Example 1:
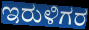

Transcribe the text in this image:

ಇರುಳಿಗರ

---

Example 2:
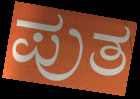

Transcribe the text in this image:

ಪುತ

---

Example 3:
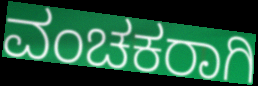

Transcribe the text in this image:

ವಂಚಕರಾಗಿ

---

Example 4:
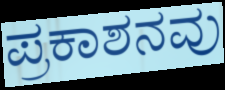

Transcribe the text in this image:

ಪ್ರಕಾಶನವು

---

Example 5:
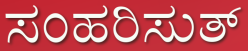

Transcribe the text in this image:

ಸಂಹರಿಸುತ್